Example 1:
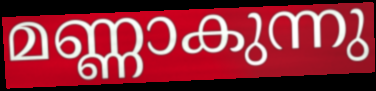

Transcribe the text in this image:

മണ്ണാകുന്നു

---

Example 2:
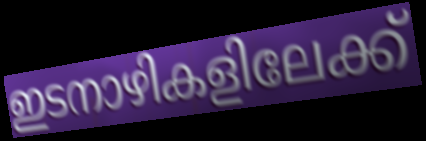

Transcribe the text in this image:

ഇടനാഴികളിലേക്ക്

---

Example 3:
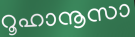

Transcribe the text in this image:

റൂഹാനൂസാ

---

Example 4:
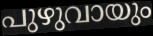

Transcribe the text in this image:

പുഴുവായും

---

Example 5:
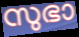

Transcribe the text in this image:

സുഭാ